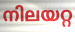
നിലയറ്റ